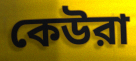
কেউরা